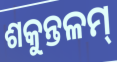
ଶକୁନ୍ତଳମ୍